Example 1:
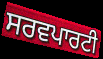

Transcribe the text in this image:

ਸਰਵਪਾਰਟੀ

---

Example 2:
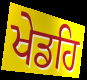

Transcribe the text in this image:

ਖੇਡਹਿ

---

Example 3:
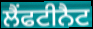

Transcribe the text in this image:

ਲੈਂਫਟੀਨੈਟ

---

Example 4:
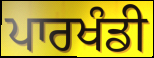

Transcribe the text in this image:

ਪਾਰਖੰਡੀ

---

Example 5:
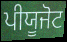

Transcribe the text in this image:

ਪੀਯੂਜੋਟ